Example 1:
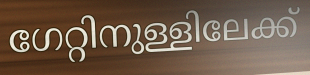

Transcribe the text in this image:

ഗേറ്റിനുള്ളിലേക്ക്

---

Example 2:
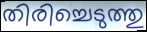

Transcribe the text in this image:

തിരിച്ചെടുത്തു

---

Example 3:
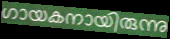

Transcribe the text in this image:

ഗായകനായിരുന്നു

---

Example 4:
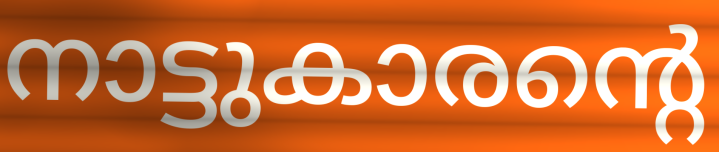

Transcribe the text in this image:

നാട്ടുകാരന്റെ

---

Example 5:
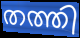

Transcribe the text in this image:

തത്തി